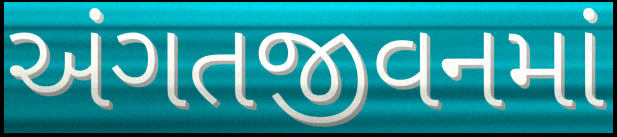
અંગતજીવનમાં